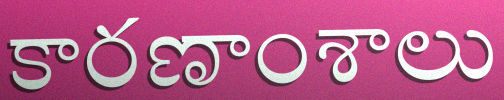
కారణాంశాలు